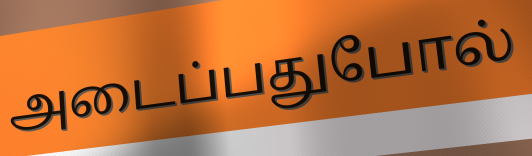
அடைப்பதுபோல்